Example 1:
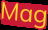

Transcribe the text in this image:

Mag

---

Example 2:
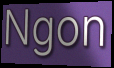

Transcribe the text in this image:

Ngon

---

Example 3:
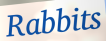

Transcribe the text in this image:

Rabbits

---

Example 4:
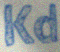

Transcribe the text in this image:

Kd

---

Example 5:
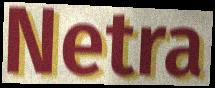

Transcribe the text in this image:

Netra